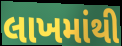
લાખમાંથી